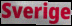
Sverige